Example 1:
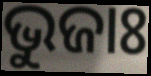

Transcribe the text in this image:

ଭୁଜାଃ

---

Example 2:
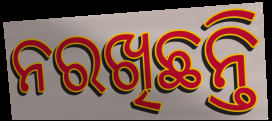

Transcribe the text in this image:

ନରଖିଛନ୍ତି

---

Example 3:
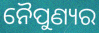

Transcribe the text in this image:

ନୈପୁଣ୍ୟର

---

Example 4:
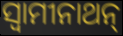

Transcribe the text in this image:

ସ୍ବାମୀନାଥନ୍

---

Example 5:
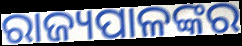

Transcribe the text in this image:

ରାଜ୍ୟପାଳଙ୍କର